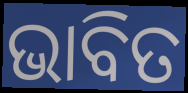
ଭାବିତ